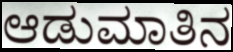
ಆಡುಮಾತಿನ